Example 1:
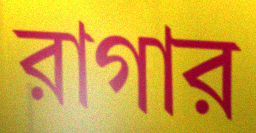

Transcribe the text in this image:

রাগার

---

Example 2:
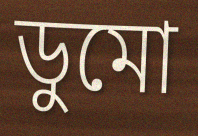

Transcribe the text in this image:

ডুমো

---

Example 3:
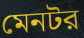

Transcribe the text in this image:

মেনটর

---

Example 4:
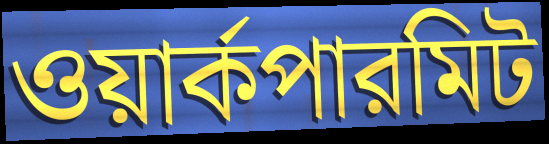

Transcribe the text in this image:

ওয়ার্কপারমিট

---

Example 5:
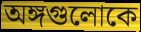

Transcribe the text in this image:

অঙ্গগুলোকে